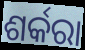
ଶର୍କରା